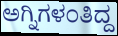
ಅಗ್ನಿಗಳಂತಿದ್ದ